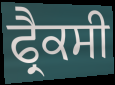
ਫ੍ਰੈਕਸੀ